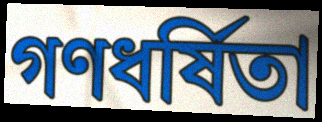
গণধর্ষিতা